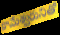
కామేశ్వరునితో